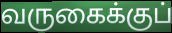
வருகைக்குப்